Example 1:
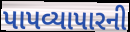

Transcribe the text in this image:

પાપવ્યાપારની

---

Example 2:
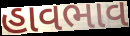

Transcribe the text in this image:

હાવભાવ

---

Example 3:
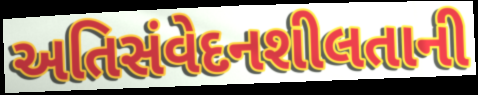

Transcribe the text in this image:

અતિસંવેદનશીલતાની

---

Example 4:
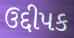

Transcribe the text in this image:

ઉદ્દીપક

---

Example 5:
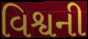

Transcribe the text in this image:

વિશ્વની